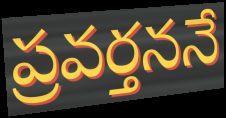
ప్రవర్తననే